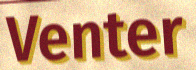
Venter